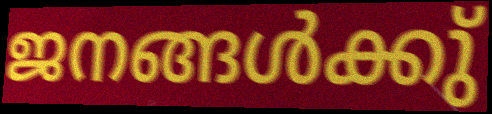
ജനങ്ങൾക്കു്